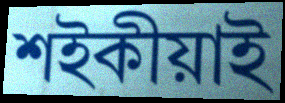
শইকীয়াই